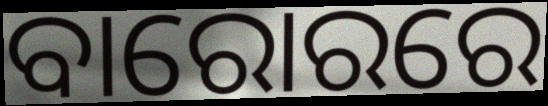
ବାରୋରରେ